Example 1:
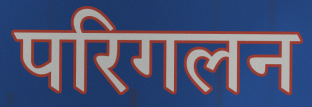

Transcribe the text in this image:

परिगलन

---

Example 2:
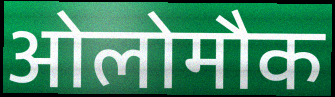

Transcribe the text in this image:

ओलोमौक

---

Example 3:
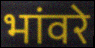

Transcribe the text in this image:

भांवरे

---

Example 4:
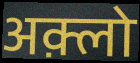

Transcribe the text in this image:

अक़्लो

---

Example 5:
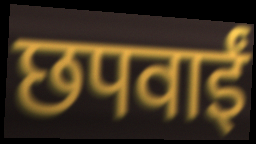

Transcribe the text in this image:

छपवाईं